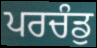
ਪਰਚੰਡੁ